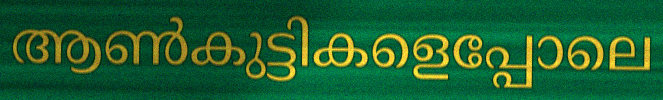
ആൺകുട്ടികളെപ്പോലെ